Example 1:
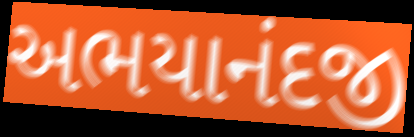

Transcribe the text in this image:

અભયાનંદજી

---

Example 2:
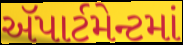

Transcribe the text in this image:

ઍપાર્ટમેન્ટમાં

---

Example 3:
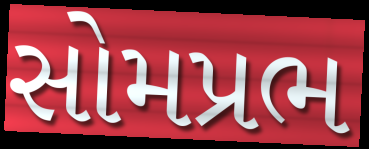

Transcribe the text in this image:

સોમપ્રભ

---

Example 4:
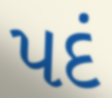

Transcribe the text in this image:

પદં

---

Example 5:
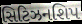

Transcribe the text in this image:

સિટિઝનશિપ